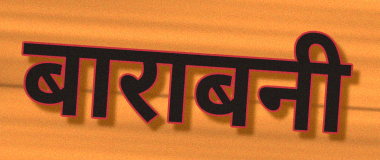
बाराबनी